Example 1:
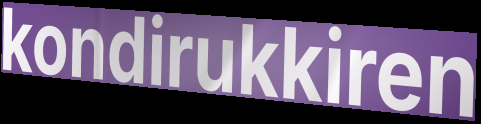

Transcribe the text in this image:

kondirukkiren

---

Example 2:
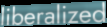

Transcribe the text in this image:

liberalized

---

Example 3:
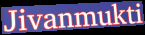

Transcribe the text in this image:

Jivanmukti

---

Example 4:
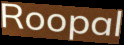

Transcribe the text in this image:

Roopal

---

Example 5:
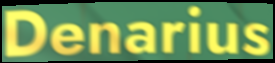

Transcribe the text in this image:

Denarius